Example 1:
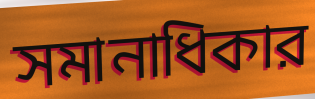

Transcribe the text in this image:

সমানাধিকার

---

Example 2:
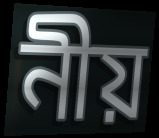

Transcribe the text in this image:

নীয়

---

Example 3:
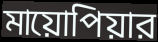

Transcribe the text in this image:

মায়োপিয়ার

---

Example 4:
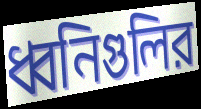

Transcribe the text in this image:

ধ্বনিগুলির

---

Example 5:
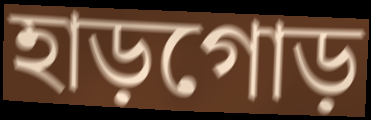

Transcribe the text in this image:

হাড়গোড়